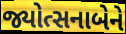
જ્યોત્સનાબેને